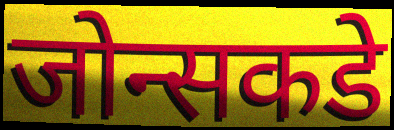
जोन्सकडे